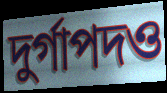
দুর্গাপদও